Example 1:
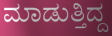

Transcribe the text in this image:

ಮಾಡುತ್ತಿದ್ದ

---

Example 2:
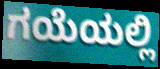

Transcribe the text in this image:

ಗಯೆಯಲ್ಲಿ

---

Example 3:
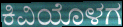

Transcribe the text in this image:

ಕಿವಿಯೊಳಗ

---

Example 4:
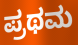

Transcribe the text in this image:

ಪ್ರಥಮ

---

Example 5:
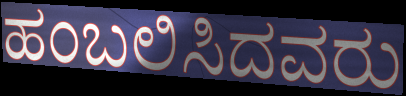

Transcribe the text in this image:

ಹಂಬಲಿಸಿದವರು